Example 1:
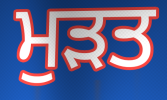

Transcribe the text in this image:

ਮੁੜਤ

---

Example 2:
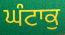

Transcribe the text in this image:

ਘੰਟਾਕੁ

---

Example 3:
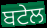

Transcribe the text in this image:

ਬਟੇਲ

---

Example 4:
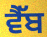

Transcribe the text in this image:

ਵੈੱਬ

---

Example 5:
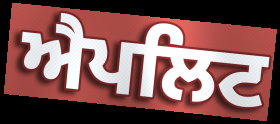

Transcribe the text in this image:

ਐਪਲਿਟ